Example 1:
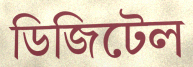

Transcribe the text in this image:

ডিজিটেল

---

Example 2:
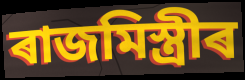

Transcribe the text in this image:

ৰাজমিস্ত্ৰীৰ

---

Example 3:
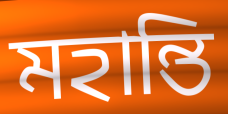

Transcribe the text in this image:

মহান্তি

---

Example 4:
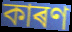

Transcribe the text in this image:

কাৰণ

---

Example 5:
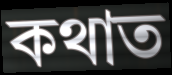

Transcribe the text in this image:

কথাত